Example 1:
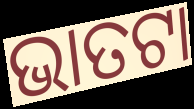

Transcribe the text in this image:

ଭାତଟା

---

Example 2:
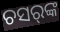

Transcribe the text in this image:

ଚସର୍‌ଙ୍କ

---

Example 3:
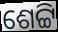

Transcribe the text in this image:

ଶେଟ୍ଟି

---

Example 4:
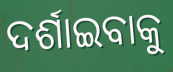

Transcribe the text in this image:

ଦର୍ଶାଇବାକୁ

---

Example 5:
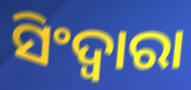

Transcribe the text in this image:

ସିଂଦ୍ୱାରା